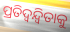
ପ୍ରତିଦ୍ୱନ୍ଦ୍ୱିତାକୁ